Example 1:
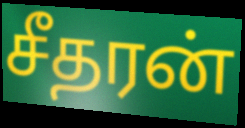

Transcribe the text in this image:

சீதரன்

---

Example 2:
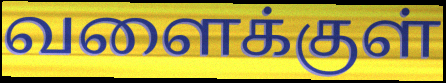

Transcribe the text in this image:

வளைக்குள்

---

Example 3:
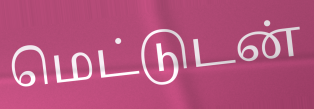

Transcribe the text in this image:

மெட்டுடன்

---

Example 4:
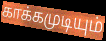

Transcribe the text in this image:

காக்கமுடியும்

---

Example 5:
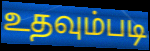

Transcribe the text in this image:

உதவும்படி